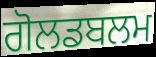
ਗੋਲਡਬਲਮ